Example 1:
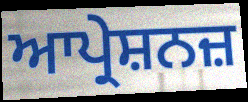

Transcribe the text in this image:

ਆਪ੍ਰੇਸ਼ਨਜ਼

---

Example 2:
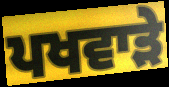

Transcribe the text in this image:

ਪਖਵਾੜੇ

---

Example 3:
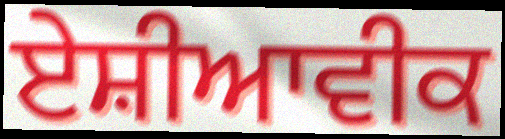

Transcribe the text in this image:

ਏਸ਼ੀਆਵੀਕ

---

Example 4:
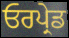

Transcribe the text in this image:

ਓਰਪ੍ਰੇਡ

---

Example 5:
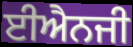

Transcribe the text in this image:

ਈਐਨਜੀ